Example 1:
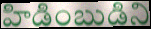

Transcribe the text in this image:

హిడింబుడిని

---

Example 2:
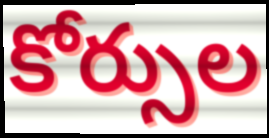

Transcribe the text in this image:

కోర్సుల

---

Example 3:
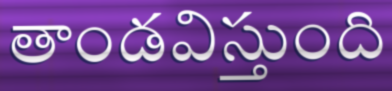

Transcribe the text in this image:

తాండవిస్తుంది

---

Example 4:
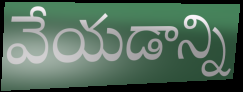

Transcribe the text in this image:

వేయడాన్ని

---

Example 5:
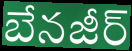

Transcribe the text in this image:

బేనజీర్